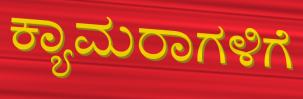
ಕ್ಯಾಮರಾಗಳಿಗೆ